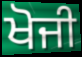
ਖੋਜੀ